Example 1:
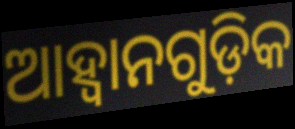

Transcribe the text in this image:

ଆହ୍ବାନଗୁଡ଼ିକ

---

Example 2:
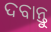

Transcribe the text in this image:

ଦବାନ୍ତୁ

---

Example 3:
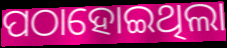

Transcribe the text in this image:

ପଠାହୋଇଥିଲା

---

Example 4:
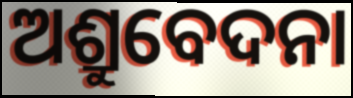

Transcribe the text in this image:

ଅଶ୍ରୁବେଦନା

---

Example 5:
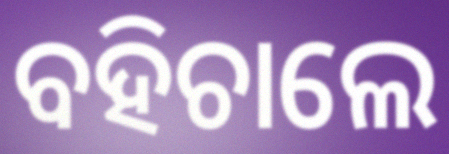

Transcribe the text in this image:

ବହିଚାଲେ